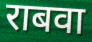
राबवा